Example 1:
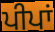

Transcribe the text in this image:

ਪੀਪਾਂ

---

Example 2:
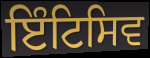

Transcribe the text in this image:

ਇੰਟਿਸਿਵ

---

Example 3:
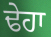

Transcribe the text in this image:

ਢੇਹਾ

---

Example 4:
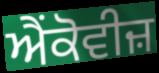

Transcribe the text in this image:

ਐਂਕੋਵੀਜ਼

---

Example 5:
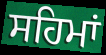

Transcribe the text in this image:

ਸਹਿਮਾਂ